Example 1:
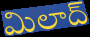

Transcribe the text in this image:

మిలాద్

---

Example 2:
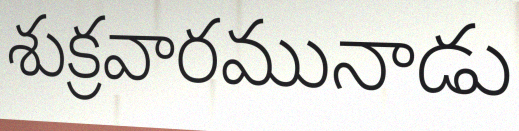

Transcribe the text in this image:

శుక్రవారమునాడు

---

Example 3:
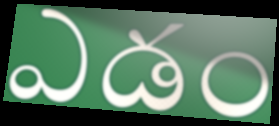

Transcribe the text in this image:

ఎడం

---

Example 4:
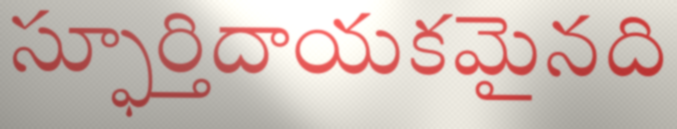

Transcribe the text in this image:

స్ఫూర్తిదాయకమైనది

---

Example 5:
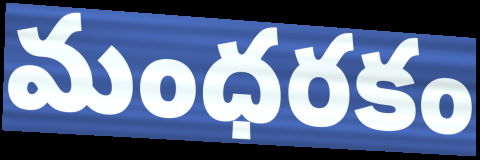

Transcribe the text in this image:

మంధరకం